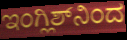
ಇಂಗ್ಲಿಶ್‌ನಿಂದ